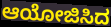
ಆಯೋಜಿಸಿದ